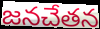
జనచేతన